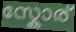
സ്കോര്